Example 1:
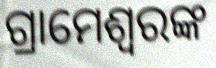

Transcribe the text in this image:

ଗ୍ରାମେଶ୍ୱରଙ୍କ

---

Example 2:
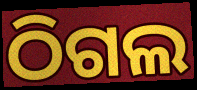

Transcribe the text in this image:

ଠିଗଲ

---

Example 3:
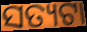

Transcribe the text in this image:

ସତ୍ୟଟା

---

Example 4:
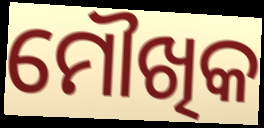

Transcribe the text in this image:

ମୌଖିକ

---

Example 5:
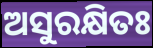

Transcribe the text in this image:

ଅସୁରକ୍ଷିତଃ